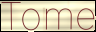
Tome